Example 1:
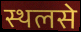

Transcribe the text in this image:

स्थलसे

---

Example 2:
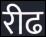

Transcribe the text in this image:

रीढ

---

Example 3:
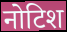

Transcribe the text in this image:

नोटिश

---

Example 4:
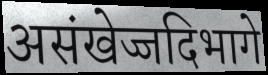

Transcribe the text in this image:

असंखेज्जदिभागे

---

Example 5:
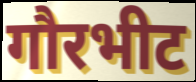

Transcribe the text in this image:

गौरभीट